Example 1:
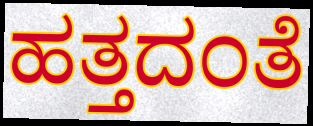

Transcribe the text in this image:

ಹತ್ತದಂತೆ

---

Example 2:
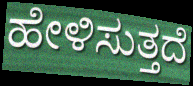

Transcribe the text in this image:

ಹೇಳಿಸುತ್ತದೆ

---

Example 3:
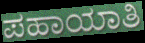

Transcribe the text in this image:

ಪಹಾಯಾತಿ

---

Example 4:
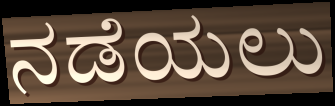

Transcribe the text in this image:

ನಡೆಯಲು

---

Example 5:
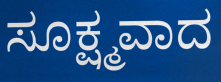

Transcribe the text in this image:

ಸೂಕ್ಷ್ಮವಾದ